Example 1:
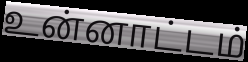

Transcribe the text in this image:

உன்னாட்டம்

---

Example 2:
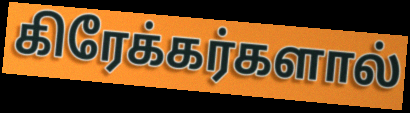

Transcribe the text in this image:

கிரேக்கர்களால்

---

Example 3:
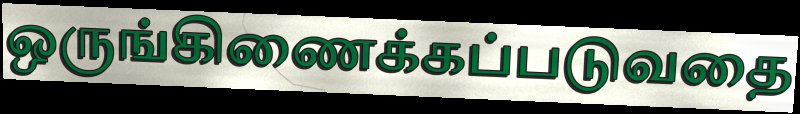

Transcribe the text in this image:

ஒருங்கிணைக்கப்படுவதை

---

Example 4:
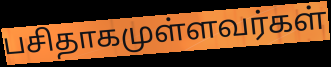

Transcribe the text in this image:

பசிதாகமுள்ளவர்கள்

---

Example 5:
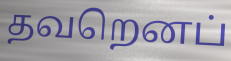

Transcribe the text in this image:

தவறெனப்